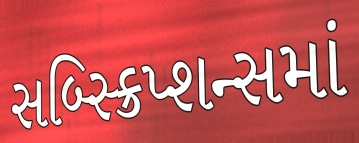
સબ્સ્ક્રિપ્શન્સમાં